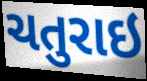
ચતુરાઇ